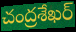
చంద్రశేఖర్